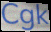
Cgk